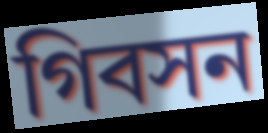
গিবসন